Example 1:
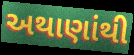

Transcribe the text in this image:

અથાણાંથી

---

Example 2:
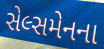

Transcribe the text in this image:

સેલ્સમેનના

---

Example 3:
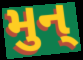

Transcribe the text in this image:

મુન્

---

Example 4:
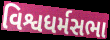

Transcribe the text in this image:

વિશ્વધર્મસભા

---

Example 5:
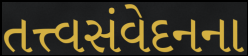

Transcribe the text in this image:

તત્ત્વસંવેદનના